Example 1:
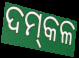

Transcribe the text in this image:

ଦମ୍‌କଳ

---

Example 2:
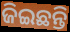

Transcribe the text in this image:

ଜିଇଛନ୍ତି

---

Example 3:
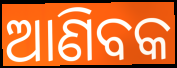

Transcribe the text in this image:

ଆଣିବକ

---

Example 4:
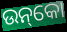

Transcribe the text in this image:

ଉନ୍‌କୋ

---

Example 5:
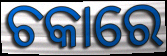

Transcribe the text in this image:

ଚକାରେ